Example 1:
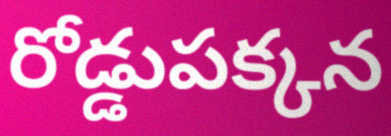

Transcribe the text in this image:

రోడ్డుపక్కన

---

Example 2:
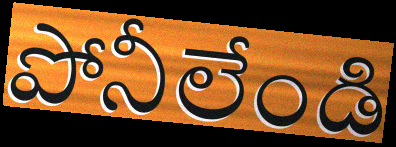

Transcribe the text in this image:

పోనీలేండి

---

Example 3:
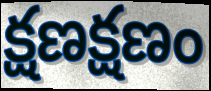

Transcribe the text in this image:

క్షణక్షణం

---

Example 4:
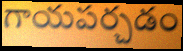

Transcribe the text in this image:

గాయపర్చడం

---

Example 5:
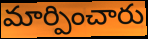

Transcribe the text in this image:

మార్పించారు